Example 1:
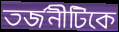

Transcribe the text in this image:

তর্জনীটিকে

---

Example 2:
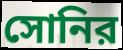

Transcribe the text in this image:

সোনির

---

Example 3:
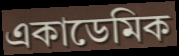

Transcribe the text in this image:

একাডেমিক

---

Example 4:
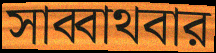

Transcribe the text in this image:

সাব্বাথবার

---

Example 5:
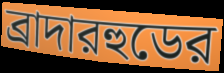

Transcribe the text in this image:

ব্রাদারহুডের